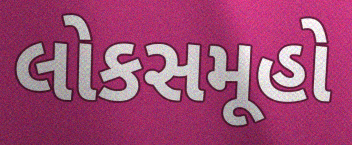
લોકસમૂહો